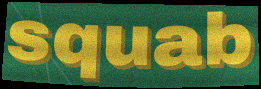
squab